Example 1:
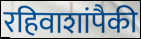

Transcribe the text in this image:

रहिवाशांपैकी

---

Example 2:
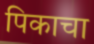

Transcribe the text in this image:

पिकाचा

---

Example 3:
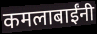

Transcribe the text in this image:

कमलाबाईंनी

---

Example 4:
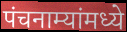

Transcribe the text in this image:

पंचनाम्यांमध्ये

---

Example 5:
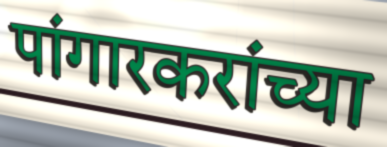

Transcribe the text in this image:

पांगारकरांच्या